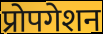
प्रोपगेशन